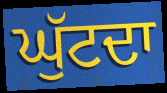
ਘੁੱਟਦਾ